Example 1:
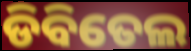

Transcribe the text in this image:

ଡିବିତେଲ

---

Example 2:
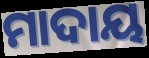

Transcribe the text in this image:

ମାଦାୟ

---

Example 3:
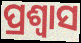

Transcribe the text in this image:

ପ୍ରଶ୍ୱାସ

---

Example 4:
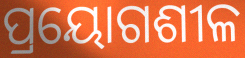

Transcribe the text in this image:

ପ୍ରୟୋଗଶୀଳ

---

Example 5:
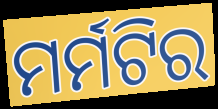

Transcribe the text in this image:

ମର୍ମଟିର